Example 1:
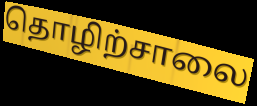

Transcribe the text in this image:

தொழிற்சாலை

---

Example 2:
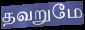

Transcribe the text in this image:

தவறுமே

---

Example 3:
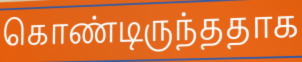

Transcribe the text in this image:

கொண்டிருந்ததாக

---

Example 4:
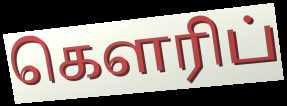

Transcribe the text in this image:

கௌரிப்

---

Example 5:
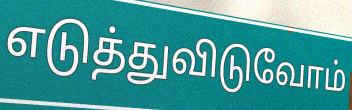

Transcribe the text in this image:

எடுத்துவிடுவோம்